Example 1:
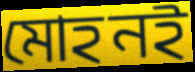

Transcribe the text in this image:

মোহনই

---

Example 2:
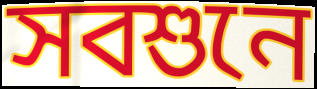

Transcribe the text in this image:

সবশুনে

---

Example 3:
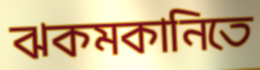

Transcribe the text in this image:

ঝকমকানিতে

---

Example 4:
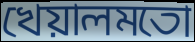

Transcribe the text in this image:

খেয়ালমতো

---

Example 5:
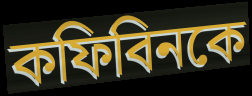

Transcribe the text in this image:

কফিবিনকে